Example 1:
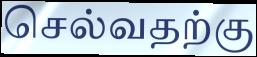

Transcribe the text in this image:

செல்வதற்கு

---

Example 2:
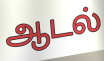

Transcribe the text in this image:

ஆடல்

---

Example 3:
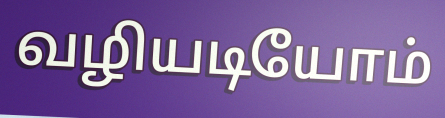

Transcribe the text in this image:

வழியடியோம்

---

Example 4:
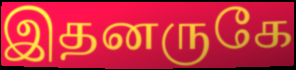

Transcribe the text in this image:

இதனருகே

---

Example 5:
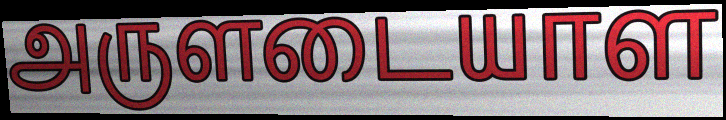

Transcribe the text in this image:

அருளடையாள